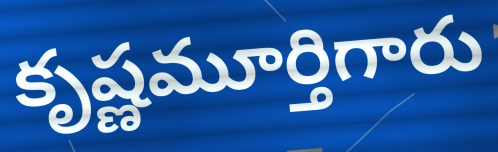
కృష్ణమూర్తిగారు